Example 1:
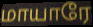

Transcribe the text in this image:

மாயாரே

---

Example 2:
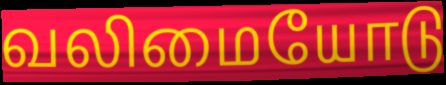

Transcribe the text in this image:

வலிமையோடு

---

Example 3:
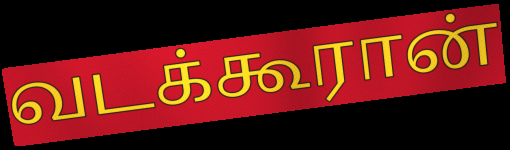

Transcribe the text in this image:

வடக்கூரான்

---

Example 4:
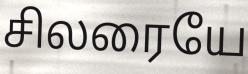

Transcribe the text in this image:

சிலரையே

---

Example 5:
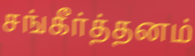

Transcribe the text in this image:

சங்கீர்த்தனம்